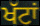
ਖੱਟਾਂ